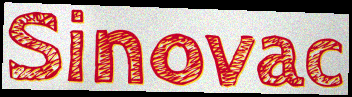
Sinovac